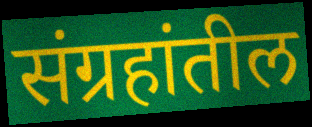
संग्रहांतील